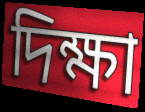
দিক্ষা